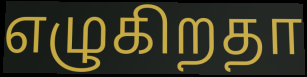
எழுகிறதா